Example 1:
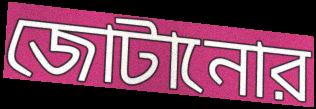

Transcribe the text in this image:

জোটানোর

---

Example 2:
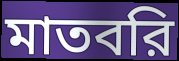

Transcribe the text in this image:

মাতবরি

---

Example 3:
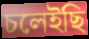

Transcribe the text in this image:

চলেইছি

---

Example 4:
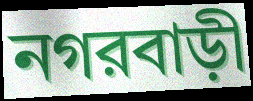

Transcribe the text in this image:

নগরবাড়ী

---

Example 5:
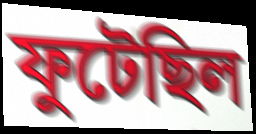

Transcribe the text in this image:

ফুটেছিল